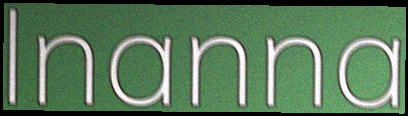
Inanna